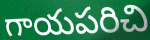
గాయపరిచి